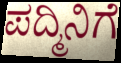
ಪದ್ಮಿನಿಗೆ